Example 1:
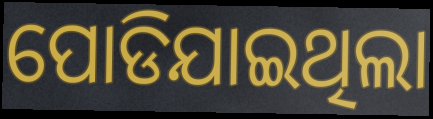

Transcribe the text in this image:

ପୋଡିଯାଇଥିଲା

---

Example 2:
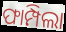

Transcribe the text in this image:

ଫାମ୍ପିଲା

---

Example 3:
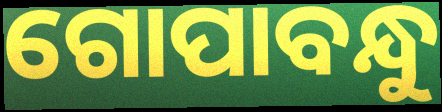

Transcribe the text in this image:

ଗୋପାବନ୍ଧୁ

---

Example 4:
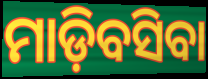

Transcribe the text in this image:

ମାଡ଼ିବସିବା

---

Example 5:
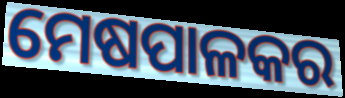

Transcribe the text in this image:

ମେଷପାଳକର